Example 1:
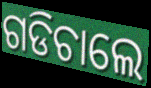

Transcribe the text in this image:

ଗଡିଚାଲେ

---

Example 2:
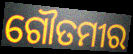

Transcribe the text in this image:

ଗୌତମୀର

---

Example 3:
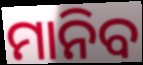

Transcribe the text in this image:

ମାନିବ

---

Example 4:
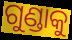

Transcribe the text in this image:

ଗୁଣ୍ଡାକୁ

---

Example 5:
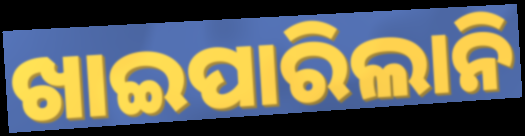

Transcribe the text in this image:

ଖାଇପାରିଲାନି